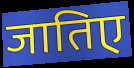
जातिए